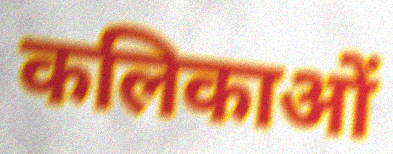
कलिकाओं